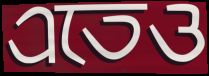
এতেও